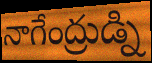
నాగేంద్రుడ్ని